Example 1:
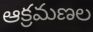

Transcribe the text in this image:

ఆక్రమణల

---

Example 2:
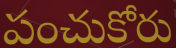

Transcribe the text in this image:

పంచుకోరు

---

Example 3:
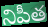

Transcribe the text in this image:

నిపీత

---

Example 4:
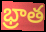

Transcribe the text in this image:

భ్రాత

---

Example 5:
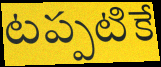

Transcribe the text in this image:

టప్పటికే